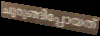
ചുരുങ്ങിപ്പോയത്